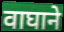
वाघाने